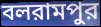
বলরামপুর